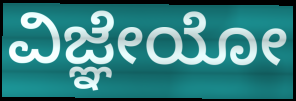
ವಿಜ್ಞೇಯೋ